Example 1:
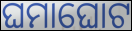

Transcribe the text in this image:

ଘମାଘୋଟ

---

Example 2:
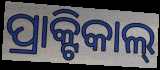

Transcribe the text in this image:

ପ୍ରାକ୍ଟିକାଲ୍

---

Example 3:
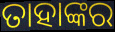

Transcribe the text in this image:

ତାହାଙ୍କର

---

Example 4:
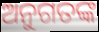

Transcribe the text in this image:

ଅନୁଗତଙ୍କ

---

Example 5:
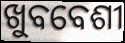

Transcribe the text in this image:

ଖୁବବେଶୀ